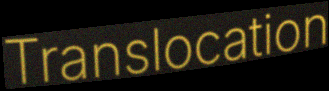
Translocation